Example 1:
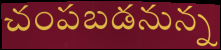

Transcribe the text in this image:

చంపబడనున్న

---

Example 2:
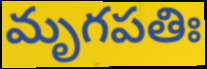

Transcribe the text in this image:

మృగపతిః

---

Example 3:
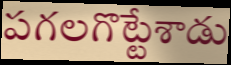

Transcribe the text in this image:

పగలగొట్టేశాడు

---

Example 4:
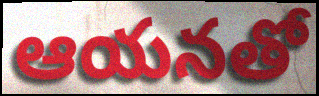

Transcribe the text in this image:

ఆయనతో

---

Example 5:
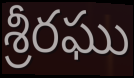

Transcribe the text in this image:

శ్రీరఘు